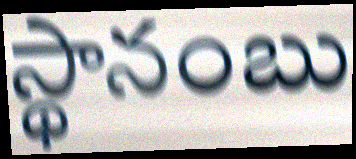
స్థానంబు